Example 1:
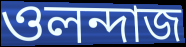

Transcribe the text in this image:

ওলন্দাজ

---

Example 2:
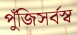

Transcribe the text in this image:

পুঁজিসর্বস্ব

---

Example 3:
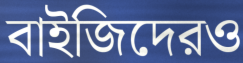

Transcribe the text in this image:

বাইজিদেরও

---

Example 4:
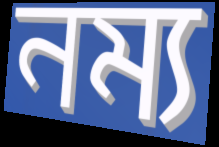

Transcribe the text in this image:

নম্য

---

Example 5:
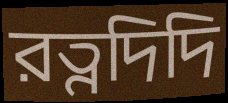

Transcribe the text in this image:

রত্নদিদি